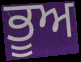
ਭੂਅ